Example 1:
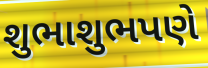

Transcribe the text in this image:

શુભાશુભપણે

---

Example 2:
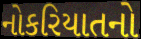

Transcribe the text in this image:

નોકરિયાતનો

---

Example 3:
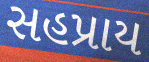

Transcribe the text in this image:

સહપ્રાય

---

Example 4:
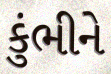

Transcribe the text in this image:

કુંભીને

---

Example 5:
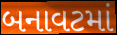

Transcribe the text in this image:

બનાવટમાં